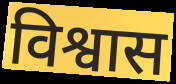
विश्वास